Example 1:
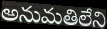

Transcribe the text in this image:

అనుమతిలేని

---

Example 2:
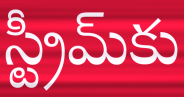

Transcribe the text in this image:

స్ట్రీమ్‌కు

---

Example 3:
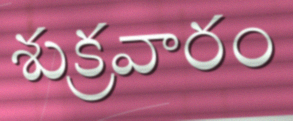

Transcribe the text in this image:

శుక్రవారం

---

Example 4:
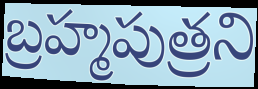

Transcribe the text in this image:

బ్రహ్మపుత్రని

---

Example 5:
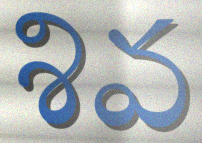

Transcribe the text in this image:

శివ